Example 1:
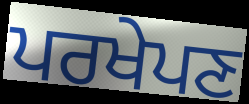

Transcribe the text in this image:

ਪਰਖੇਪਣ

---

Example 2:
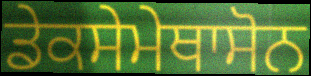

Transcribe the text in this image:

ਡੇਕਸੇਮੇਥਾਸੋਨ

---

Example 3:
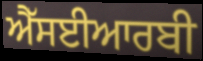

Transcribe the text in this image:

ਐੱਸਈਆਰਬੀ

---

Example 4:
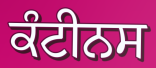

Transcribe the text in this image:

ਕੰਟੀਨਸ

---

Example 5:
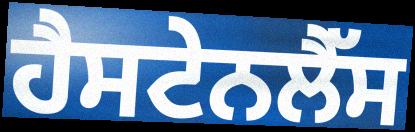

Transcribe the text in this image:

ਹੈਸਟੇਨਲੈੱਸ